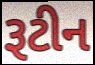
રૂટીન